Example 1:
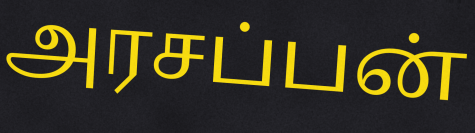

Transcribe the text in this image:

அரசப்பன்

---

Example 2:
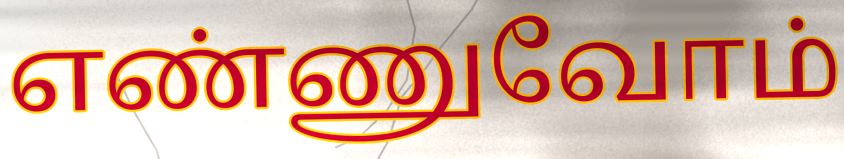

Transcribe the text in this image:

எண்ணுவோம்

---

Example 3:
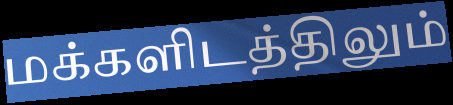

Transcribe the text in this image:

மக்களிடத்திலும்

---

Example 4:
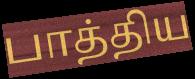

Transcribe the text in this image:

பாத்திய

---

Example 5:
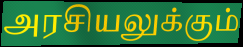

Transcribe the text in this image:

அரசியலுக்கும்